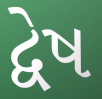
દ્વેષ